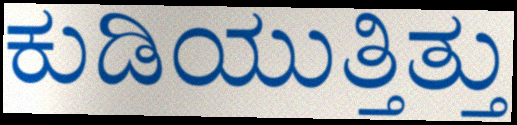
ಕುಡಿಯುತ್ತಿತ್ತು